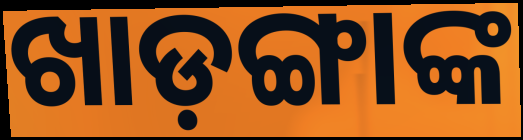
ଖାଡ଼ଙ୍ଗାଙ୍କ